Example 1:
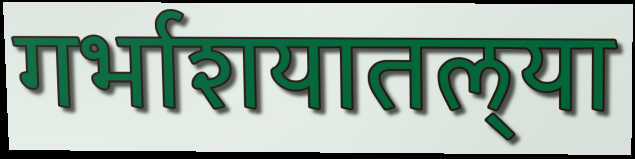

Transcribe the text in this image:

गर्भाशयातल्या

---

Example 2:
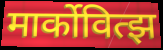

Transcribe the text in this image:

मार्कोवित्झ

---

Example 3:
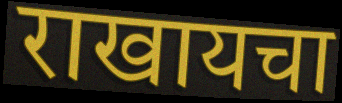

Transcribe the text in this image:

राखायचा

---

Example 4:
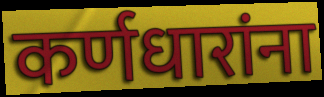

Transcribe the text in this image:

कर्णधारांना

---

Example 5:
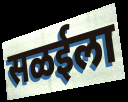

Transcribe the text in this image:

सळईला